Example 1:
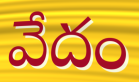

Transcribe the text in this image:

వేదం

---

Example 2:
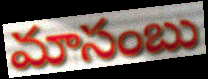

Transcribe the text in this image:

మాసంబు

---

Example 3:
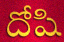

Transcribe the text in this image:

దోషి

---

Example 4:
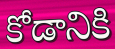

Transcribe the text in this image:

కోడానికి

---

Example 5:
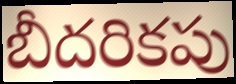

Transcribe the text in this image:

బీదరికపు